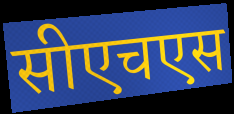
सीएचएस